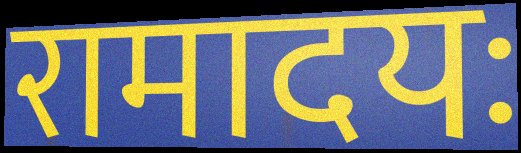
रामादयः